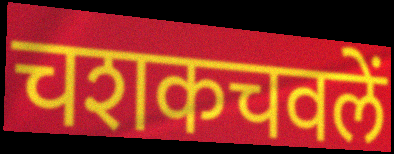
चशकचवलें